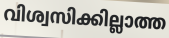
വിശ്വസിക്കില്ലാത്ത